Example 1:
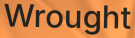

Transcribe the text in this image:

Wrought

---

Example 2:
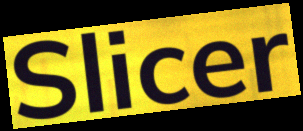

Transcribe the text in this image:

Slicer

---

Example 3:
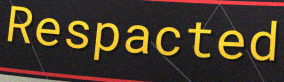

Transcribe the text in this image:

Respacted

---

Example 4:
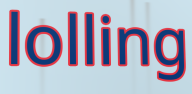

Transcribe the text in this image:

lolling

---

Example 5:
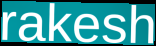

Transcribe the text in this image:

rakesh